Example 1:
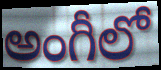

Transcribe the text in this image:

అంగీలో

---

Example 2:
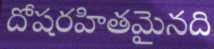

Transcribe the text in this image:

దోషరహితమైనది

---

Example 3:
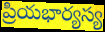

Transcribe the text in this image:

ప్రియభార్యస్య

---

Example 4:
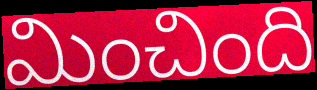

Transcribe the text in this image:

మించింది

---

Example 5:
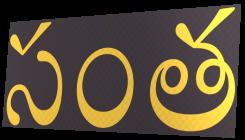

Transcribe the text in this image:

సంత